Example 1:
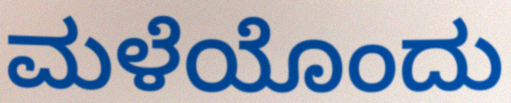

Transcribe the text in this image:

ಮಳೆಯೊಂದು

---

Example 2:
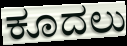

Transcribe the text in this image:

ಕೂದಲು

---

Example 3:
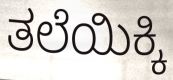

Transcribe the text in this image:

ತಲೆಯಿಕ್ಕಿ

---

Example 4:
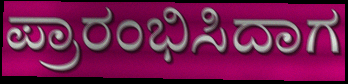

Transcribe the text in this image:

ಪ್ರಾರಂಭಿಸಿದಾಗ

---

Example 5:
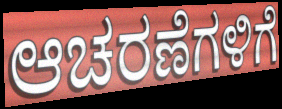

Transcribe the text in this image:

ಆಚರಣೆಗಳಿಗೆ